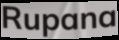
Rupana